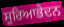
ਸੂਰਿਆਭੇਦਨ